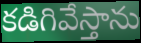
కడిగివేస్తాను